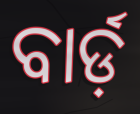
ବାର୍ଡ଼